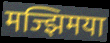
मज्झिमया